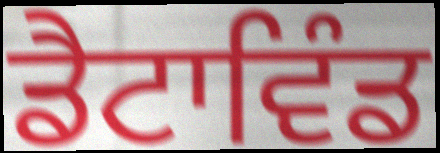
ਡੈਟਾਵਿੰਡ